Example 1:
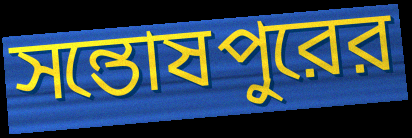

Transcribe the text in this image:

সন্তোষপুরের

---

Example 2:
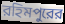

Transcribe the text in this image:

রহিমপুরের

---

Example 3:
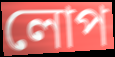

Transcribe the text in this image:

লোপ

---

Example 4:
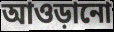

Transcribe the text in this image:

আওড়ানো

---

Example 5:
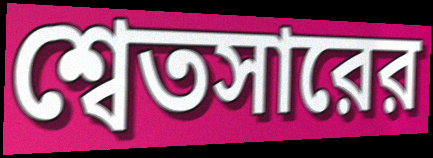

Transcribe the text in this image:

শ্বেতসারের